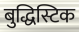
बुद्धिस्टिक